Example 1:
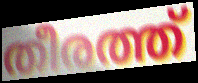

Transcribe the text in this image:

തീരത്ത്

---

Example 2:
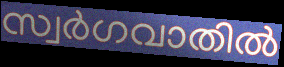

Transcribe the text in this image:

സ്വർഗവാതിൽ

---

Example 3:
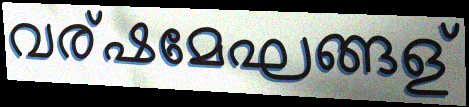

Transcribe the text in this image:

വര്ഷമേഘങ്ങള്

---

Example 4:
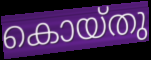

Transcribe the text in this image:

കൊയ്തു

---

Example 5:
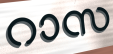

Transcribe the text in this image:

റാസ